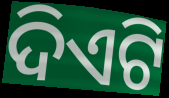
ଦିଏଟି